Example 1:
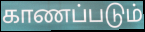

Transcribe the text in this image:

காணப்படும்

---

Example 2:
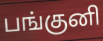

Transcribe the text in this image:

பங்குனி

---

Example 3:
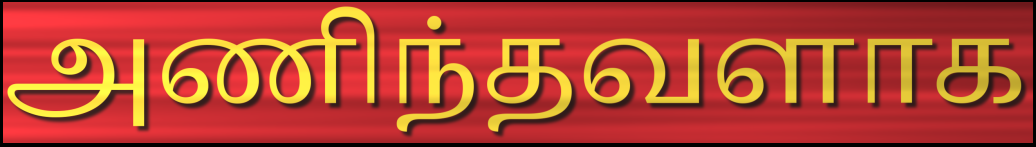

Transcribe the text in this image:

அணிந்தவளாக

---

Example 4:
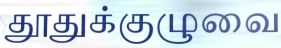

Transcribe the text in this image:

தூதுக்குழுவை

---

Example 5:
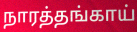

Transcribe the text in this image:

நாரத்தங்காய்